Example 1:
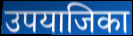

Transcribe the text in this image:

उपयाजिका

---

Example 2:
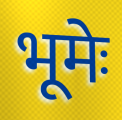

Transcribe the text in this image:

भूमेः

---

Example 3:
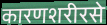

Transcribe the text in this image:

कारणशरीरसे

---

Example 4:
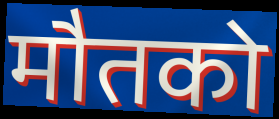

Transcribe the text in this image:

मौतको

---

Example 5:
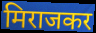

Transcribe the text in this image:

मिराजकर